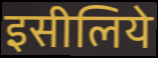
इसीलिये